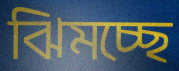
ঝিমচ্ছে